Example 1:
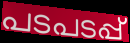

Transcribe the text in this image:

പടപടപ്പ്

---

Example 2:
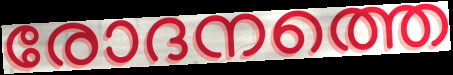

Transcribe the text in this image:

രോദനത്തെ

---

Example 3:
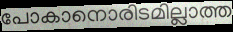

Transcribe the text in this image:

പോകാനൊരിടമില്ലാത്ത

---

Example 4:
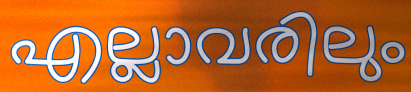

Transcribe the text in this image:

എല്ലാവരിലും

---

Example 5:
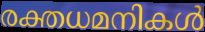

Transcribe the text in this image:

രക്തധമനികൾ